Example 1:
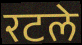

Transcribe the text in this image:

रटले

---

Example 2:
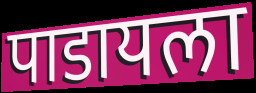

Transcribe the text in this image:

पाडायला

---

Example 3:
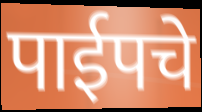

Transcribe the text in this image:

पाईपचे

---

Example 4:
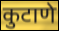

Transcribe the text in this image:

कुटाणे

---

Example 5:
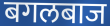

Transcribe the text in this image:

बगलबाज